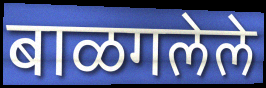
बाळगलेले